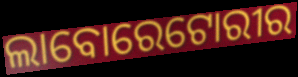
ଲାବୋରେଟୋରୀର